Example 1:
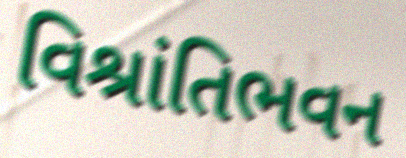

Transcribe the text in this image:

વિશ્રાંતિભવન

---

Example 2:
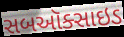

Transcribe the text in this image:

સબઑક્સાઇડ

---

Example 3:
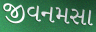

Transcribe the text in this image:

જીવનમસા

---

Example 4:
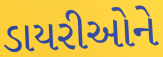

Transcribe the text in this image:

ડાયરીઓને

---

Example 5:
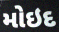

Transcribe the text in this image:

મોઇદ